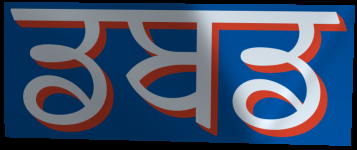
ਡਬਡ